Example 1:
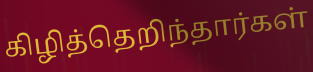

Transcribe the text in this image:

கிழித்தெறிந்தார்கள்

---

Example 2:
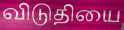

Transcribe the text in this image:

விடுதியை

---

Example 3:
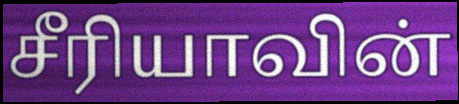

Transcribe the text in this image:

சீரியாவின்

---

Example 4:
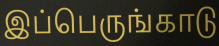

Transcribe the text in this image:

இப்பெருங்காடு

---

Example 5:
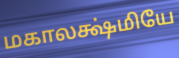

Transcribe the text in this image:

மகாலக்ஷ்மியே